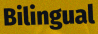
Bilingual